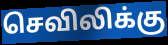
செவிலிக்கு